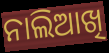
ନାଲିଆଖି